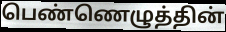
பெண்ணெழுத்தின்